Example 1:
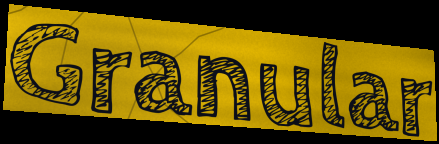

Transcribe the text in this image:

Granular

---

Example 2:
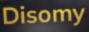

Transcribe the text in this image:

Disomy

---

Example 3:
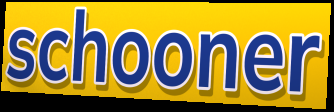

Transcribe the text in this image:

schooner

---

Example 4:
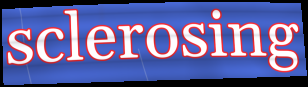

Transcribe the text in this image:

sclerosing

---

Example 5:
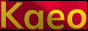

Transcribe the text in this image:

Kaeo